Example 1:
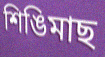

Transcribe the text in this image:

শিঙিমাছ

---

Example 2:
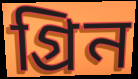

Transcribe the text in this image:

গ্রিন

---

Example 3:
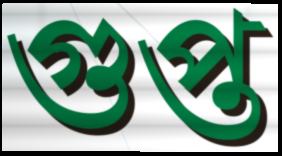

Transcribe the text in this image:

গুপ্ত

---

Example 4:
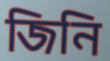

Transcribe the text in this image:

জিনি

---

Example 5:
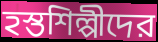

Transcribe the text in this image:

হস্তশিল্পীদের